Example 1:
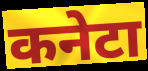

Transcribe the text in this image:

कनेटा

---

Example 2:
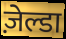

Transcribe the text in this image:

ज़ेल्डा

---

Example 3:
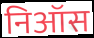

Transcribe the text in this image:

निऑस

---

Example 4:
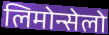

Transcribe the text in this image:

लिमोन्सेलो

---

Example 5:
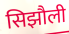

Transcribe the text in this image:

सिझौली